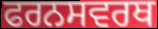
ਫਰਨਸਵਰਥ